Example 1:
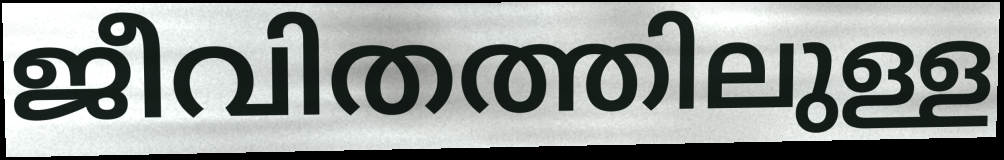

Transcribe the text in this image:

ജീവിതത്തിലുള്ള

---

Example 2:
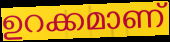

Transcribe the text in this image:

ഉറക്കമാണ്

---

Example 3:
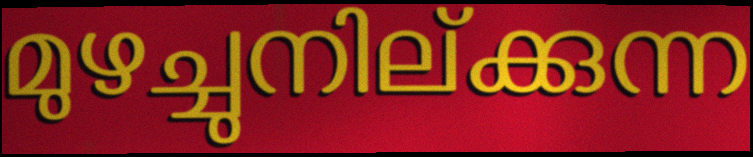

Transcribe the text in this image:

മുഴച്ചുനില്ക്കുന്ന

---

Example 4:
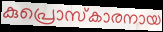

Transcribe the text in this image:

കുപ്രൊസ്കാരനായ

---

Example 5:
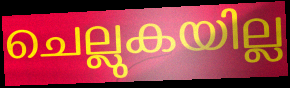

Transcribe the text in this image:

ചെല്ലുകയില്ല